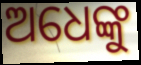
ଅଧେଙ୍କୁ